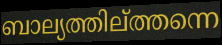
ബാല്യത്തില്ത്തന്നെ